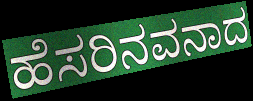
ಹೆಸರಿನವನಾದ